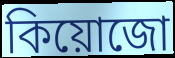
কিয়োজো